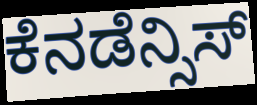
ಕೆನಡೆನ್ಸಿಸ್